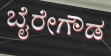
ಬೈರೇಗೌಡ